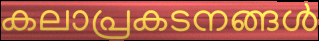
കലാപ്രകടനങ്ങൾ